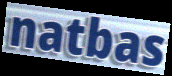
natbas